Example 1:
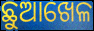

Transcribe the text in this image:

ଛୁଆଖେଳ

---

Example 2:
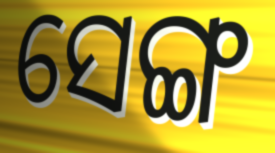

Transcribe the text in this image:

ସେଙ୍ଗ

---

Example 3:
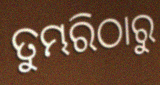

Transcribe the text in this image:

ତୁମ୍ଭରିଠାରୁ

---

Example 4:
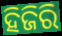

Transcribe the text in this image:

ହିଜିରି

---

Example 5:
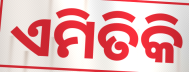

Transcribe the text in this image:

ଏମିତିକି